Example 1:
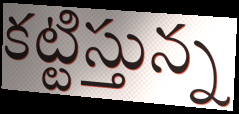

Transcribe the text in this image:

కట్టిస్తున్న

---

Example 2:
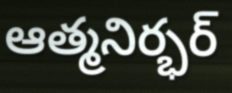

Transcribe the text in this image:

ఆత్మనిర్భర్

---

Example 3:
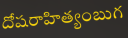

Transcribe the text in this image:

దోషరాహిత్యంబుగ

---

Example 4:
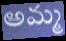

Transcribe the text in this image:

అమ్మ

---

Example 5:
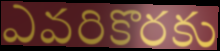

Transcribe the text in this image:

ఎవరికొరకు